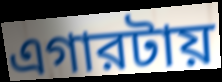
এগারটায়